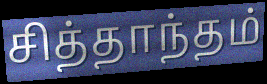
சித்தாந்தம்